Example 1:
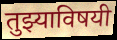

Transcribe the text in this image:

तुझ्याविषयी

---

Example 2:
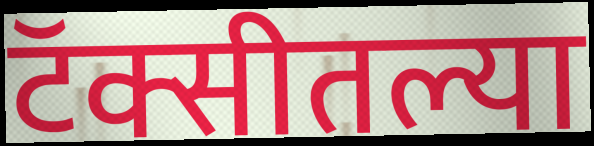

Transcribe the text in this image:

टॅक्सीतल्या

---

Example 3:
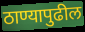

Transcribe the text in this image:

ठाण्यापुढील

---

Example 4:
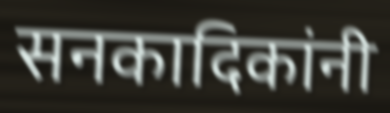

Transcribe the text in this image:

सनकादिकांनी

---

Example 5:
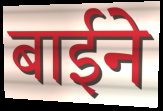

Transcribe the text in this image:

बाईने